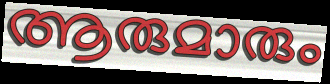
ആരുമാരും